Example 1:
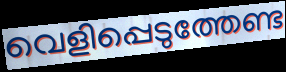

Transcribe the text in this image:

വെളിപ്പെടുത്തേണ്ട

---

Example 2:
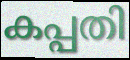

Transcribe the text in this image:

കപ്പതി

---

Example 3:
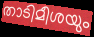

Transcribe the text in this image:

താടിമീശയും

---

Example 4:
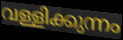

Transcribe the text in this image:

വള്ളിക്കുന്നം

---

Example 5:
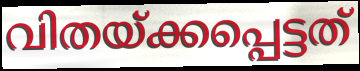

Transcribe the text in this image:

വിതയ്ക്കപ്പെട്ടത്